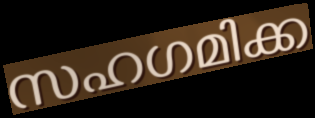
സഹഗമിക്ക